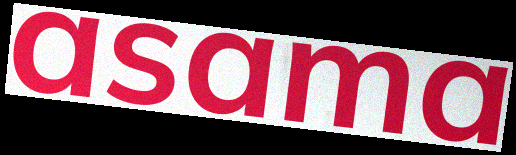
asama